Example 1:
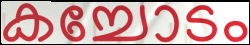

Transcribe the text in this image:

കച്ചോടം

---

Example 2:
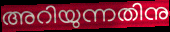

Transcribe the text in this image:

അറിയുന്നതിനു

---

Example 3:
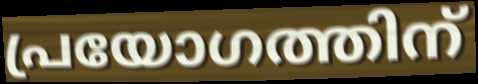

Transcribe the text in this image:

പ്രയോഗത്തിന്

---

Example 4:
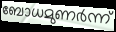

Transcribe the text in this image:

ബോധമുണർന്ന്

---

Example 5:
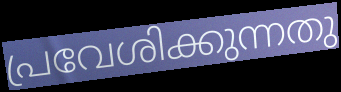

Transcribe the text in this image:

പ്രവേശിക്കുന്നതു